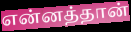
என்னத்தான்